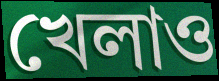
খেলাও